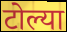
टोल्या